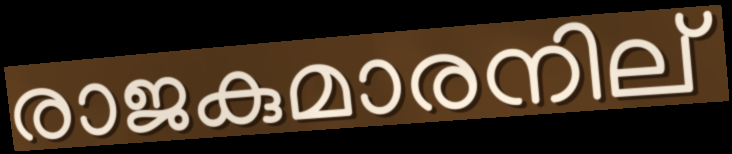
രാജകുമാരനില്